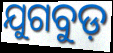
ଯୁଗବୁଡ଼